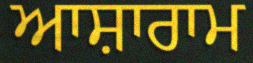
ਆਸ਼ਾਰਾਮ